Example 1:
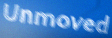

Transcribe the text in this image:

Unmoved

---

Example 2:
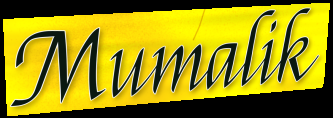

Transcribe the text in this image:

Mumalik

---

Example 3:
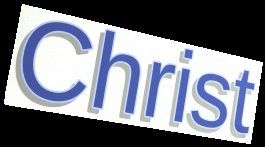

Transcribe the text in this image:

Christ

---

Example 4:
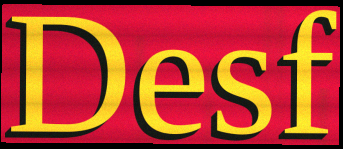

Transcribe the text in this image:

Desf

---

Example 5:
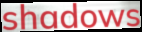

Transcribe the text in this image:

shadows